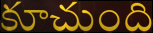
కూచుంది